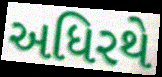
અધિરથે